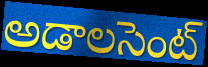
అడాలసెంట్